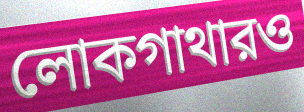
লোকগাথারও